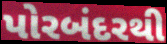
પોરબંદરથી